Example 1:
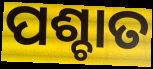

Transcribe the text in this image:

ପଶ୍ଚାତ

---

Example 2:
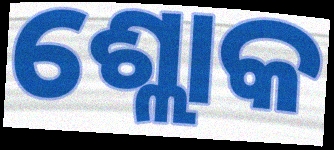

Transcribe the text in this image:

ଶ୍ଲୋକ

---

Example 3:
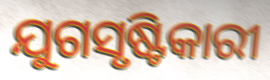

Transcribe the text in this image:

ଯୁଗସୃଷ୍ଟିକାରୀ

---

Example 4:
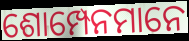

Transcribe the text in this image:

ଶୋମ୍ପେନମାନେ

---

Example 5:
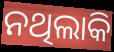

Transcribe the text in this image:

ନଥିଲାକି